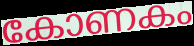
കോണകം